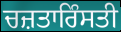
ਚਜ਼ਤਾਰਿੰਸਤੀ